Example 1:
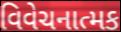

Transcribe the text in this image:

વિવેચનાત્મક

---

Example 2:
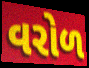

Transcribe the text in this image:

વરોળ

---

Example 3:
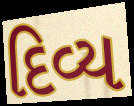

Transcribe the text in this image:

દિવ્ય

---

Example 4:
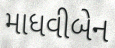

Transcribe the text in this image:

માધવીબેન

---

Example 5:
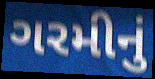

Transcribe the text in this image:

ગરમીનું